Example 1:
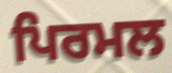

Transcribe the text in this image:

ਪਿਰਮਲ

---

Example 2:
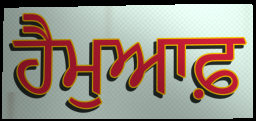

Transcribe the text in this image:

ਹੈਮੁਆਫ਼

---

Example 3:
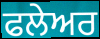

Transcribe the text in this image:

ਫਲੇਅਰ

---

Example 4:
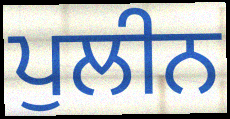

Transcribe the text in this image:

ਪੁਲੀਨ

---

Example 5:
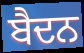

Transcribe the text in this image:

ਬੈਦਨ